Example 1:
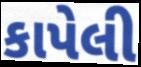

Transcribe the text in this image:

કાપેલી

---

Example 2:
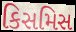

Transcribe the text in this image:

કિસમિસ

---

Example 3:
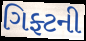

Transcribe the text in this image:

ગિફ્ટની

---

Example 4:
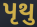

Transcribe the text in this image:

પૃથુ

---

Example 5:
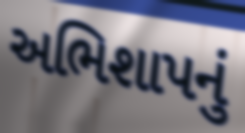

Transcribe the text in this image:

અભિશાપનું